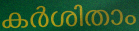
കർശിതാം